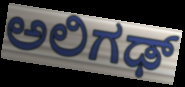
ಅಲಿಗಢ್